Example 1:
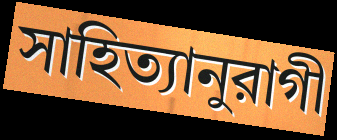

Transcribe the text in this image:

সাহিত্যানুরাগী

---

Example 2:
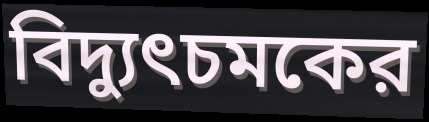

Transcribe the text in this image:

বিদ্যুৎচমকের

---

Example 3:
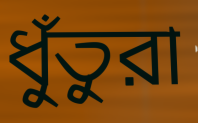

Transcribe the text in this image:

ধুঁতুরা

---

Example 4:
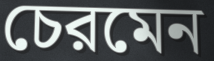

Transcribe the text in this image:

চেরমেন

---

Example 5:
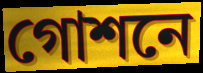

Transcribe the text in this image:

গোশনে